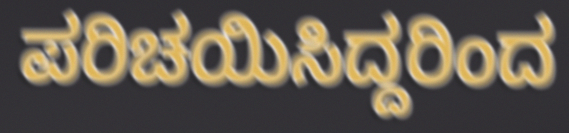
ಪರಿಚಯಿಸಿದ್ದರಿಂದ